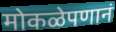
मोकळेपणानं